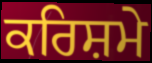
ਕਰਿਸ਼ਮੇ